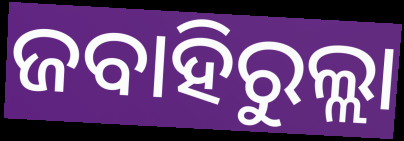
ଜବାହିରୁଲ୍ଲା